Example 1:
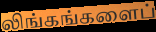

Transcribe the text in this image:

லிங்கங்களைப்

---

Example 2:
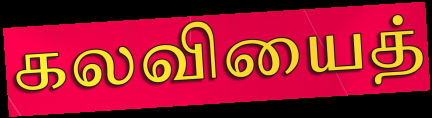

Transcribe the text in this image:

கலவியைத்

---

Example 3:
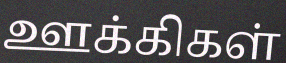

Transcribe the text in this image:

ஊக்கிகள்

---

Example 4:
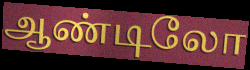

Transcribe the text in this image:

ஆண்டிலோ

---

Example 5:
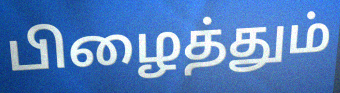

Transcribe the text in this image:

பிழைத்தும்